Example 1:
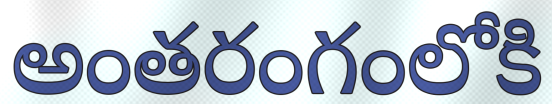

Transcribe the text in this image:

అంతరంగంలోకి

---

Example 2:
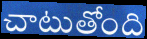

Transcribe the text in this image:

చాటుతోంది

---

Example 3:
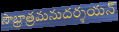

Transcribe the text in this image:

సౌభ్రాత్రమనుదర్శయన్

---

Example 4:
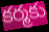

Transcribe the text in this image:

కర్మకు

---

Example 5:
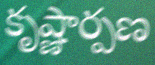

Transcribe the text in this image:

కృష్ణార్పణ